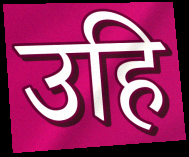
उहि